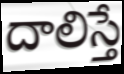
దాలిస్తే